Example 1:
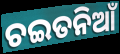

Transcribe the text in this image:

ଚଇତନିଆଁ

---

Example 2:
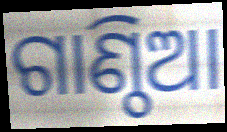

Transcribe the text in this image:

ଗାଣ୍ଠିଆ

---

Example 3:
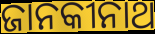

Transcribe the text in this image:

ଜାନକୀନାଥ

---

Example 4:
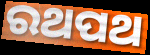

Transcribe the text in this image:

ରଥପଥ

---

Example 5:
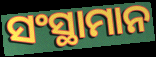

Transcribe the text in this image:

ସଂସ୍ଥାମାନ